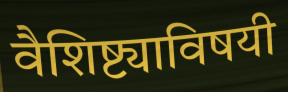
वैशिष्ट्याविषयी